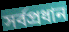
সর্বপ্রধান